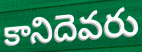
కానిదెవరు